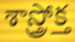
శాస్త్రోక్త